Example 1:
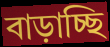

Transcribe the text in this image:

বাড়াচ্ছি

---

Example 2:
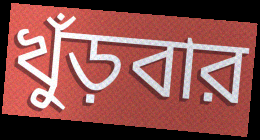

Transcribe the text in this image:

খুঁড়বার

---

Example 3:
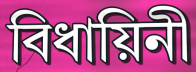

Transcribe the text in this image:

বিধায়িনী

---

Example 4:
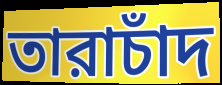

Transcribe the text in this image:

তারাচাঁদ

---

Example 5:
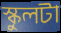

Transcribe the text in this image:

স্কুলটা